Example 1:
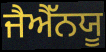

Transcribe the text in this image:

ਜੈਐੱਨਯੂ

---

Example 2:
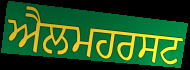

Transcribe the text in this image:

ਐਲਮਹਰਸਟ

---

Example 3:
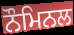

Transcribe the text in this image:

ਨੌਮਿਨਲ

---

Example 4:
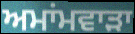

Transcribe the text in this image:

ਅਮਾਂਮਵਾੜਾ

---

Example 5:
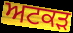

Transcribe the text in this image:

ਅਟਕੜ